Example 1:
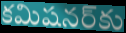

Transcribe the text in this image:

కమిషనర్‌కు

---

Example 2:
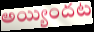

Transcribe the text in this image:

అయ్యిందట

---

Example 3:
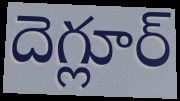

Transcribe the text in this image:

దెగ్లూర్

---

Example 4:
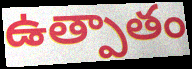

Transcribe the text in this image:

ఉత్పాతం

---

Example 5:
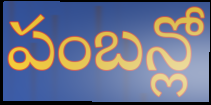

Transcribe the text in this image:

పంబన్లో